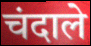
चंदाले